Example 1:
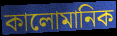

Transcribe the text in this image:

কালোমানিক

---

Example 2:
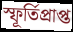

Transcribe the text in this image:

স্ফূর্তিপ্রাপ্ত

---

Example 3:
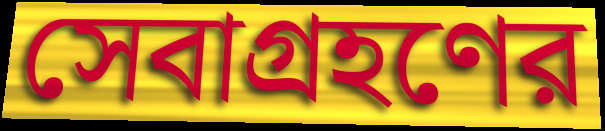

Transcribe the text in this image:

সেবাগ্রহণের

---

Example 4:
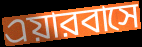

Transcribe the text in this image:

এয়ারবাসে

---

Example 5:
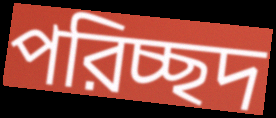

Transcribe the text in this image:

পরিচ্ছদ